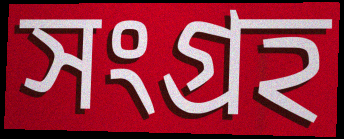
সংগ্ৰহ